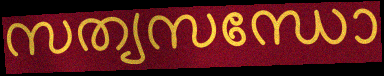
സത്യസന്ധോ